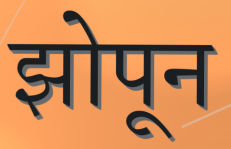
झोपून